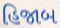
હિજાબ